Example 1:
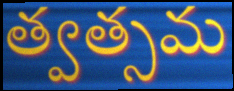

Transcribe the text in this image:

త్వత్సమ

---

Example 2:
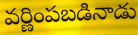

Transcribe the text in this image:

వర్ణింపబడినాడు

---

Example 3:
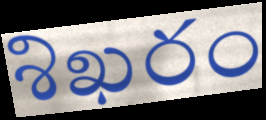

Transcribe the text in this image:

శిఖరం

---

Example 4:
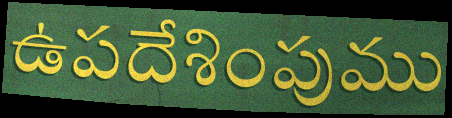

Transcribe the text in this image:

ఉపదేశింపుము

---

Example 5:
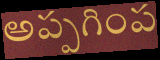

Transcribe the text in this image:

అప్పగింప